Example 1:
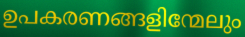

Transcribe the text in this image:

ഉപകരണങ്ങളിന്മേലും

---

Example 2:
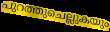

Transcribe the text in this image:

പുറത്തുചെല്ലുകയും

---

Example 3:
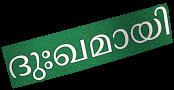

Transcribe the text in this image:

ദുഃഖമായി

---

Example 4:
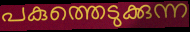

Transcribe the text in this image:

പകുത്തെടുക്കുന്ന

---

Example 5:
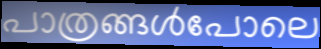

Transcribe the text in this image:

പാത്രങ്ങൾപോലെ